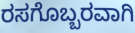
ರಸಗೊಬ್ಬರವಾಗಿ